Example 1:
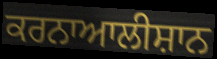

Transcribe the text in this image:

ਕਰਨਾਆਲੀਸ਼ਾਨ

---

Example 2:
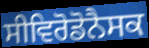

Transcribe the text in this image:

ਸੀਵਿਰੋਡੋਨੈਸਕ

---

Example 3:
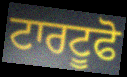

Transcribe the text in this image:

ਟਾਰਟੂਫੋ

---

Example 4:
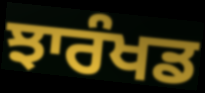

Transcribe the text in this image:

ਝਾਰੰਖਡ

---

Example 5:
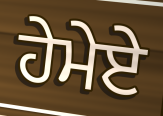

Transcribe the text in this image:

ਹੇਮੇਏ